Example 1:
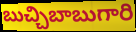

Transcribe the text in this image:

బుచ్చిబాబుగారి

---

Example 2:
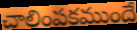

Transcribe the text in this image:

చాలింపకముందే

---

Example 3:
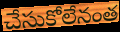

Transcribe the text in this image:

చేసుకోలేనంత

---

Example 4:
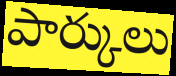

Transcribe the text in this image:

పార్కులు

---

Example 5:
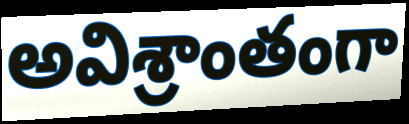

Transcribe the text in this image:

అవిశ్రాంతంగా